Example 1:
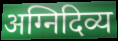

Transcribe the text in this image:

अग्निदिव्य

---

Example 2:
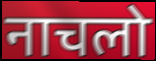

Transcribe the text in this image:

नाचलो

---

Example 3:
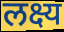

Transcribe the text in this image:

लक्ष्य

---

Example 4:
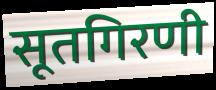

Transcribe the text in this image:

सूतगिरणी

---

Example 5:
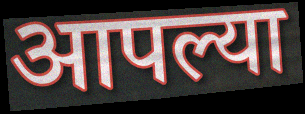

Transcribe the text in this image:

आपल्या